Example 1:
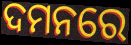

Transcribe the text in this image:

ଦମନରେ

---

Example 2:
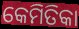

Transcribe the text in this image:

କେମିତିକା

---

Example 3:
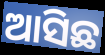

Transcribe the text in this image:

ଆସିଛ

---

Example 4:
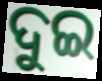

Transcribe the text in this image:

ଦୁଇ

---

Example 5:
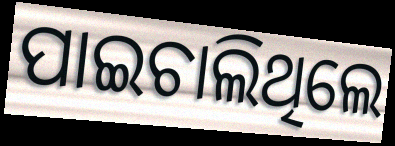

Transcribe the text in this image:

ପାଇଚାଲିଥିଲେ